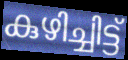
കുഴിച്ചിട്ട്